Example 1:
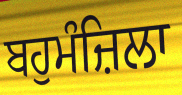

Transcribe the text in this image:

ਬਹੁਮੰਜ਼ਿਲਾ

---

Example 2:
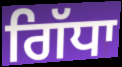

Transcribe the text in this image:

ਗਿੱਧਾ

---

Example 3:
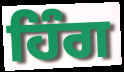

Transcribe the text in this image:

ਹਿੰਗ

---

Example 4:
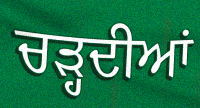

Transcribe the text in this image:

ਚੜ੍ਹਦੀਆਂ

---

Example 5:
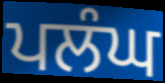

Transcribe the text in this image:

ਪਲੰਘ